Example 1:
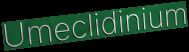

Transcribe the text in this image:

Umeclidinium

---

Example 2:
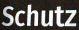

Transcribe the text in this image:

Schutz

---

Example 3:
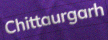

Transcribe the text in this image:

Chittaurgarh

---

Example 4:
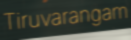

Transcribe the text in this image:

Tiruvarangam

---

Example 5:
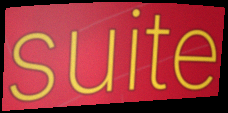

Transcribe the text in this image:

suite